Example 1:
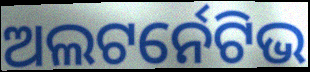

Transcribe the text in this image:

ଅଲଟର୍ନେଟିଭ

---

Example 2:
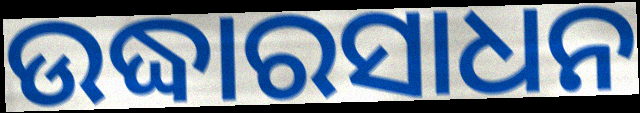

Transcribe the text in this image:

ଉଦ୍ଧାରସାଧନ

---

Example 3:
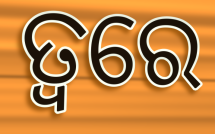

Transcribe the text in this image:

ତ୍ଵରେ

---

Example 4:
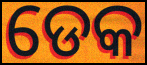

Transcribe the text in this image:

ଡେକ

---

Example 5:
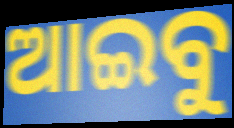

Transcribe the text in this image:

ଆଇବୁ